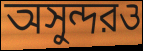
অসুন্দরও